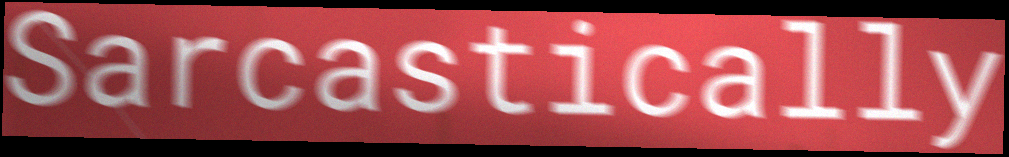
Sarcastically